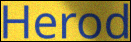
Herod